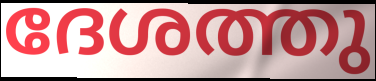
ദേശത്തു